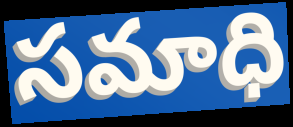
సమాధి